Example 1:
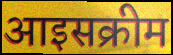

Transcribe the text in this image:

आइसक्रीम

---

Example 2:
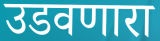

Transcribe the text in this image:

उडवणारा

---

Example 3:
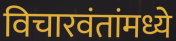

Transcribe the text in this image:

विचारवंतांमध्ये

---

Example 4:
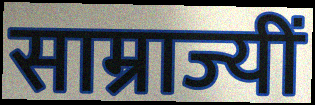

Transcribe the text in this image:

साम्राज्यीं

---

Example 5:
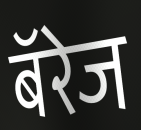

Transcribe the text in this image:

बॅरेज